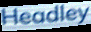
Headley